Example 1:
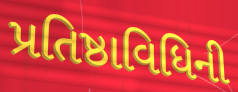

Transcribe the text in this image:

પ્રતિષ્ઠાવિધિની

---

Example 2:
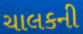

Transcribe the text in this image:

ચાલકની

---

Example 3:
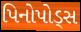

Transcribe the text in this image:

પિનોપોડ્સ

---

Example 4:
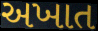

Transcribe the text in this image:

અખાત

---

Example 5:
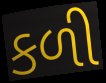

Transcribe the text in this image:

કળી